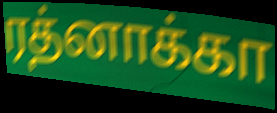
ரத்னாக்கா